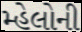
મ્હેલોની